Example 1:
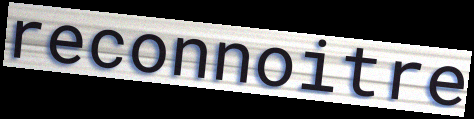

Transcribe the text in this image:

reconnoitre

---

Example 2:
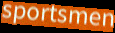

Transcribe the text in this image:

sportsmen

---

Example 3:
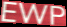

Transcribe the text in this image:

EWP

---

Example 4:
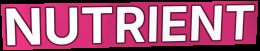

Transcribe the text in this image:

NUTRIENT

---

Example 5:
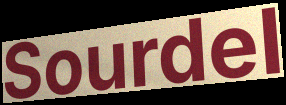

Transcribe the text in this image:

Sourdel